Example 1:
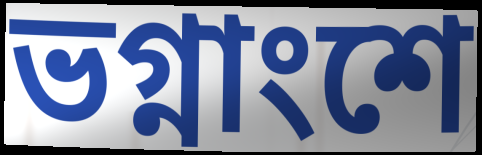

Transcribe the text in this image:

ভগ্নাংশে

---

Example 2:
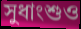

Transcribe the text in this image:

সুধাংশুও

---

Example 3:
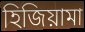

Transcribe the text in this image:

হিজিয়ামা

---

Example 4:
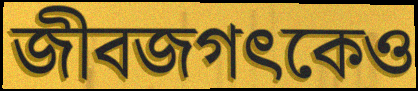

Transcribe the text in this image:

জীবজগৎকেও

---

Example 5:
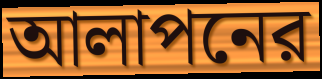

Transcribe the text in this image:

আলাপনের